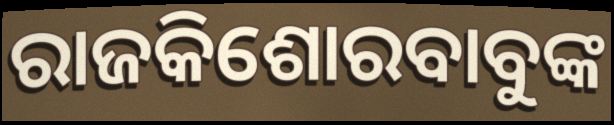
ରାଜକିଶୋରବାବୁଙ୍କ